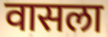
वासला